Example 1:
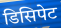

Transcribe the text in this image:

डिसिपेट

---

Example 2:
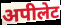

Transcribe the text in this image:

अपीलेट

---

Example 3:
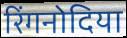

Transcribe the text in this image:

रिंगनोदिया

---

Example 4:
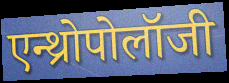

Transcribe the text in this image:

एन्थ्रोपोलॉजी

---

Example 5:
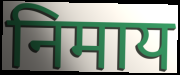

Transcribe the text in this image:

निमाय